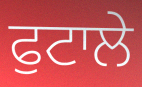
ਫੁਟਾਲੇ